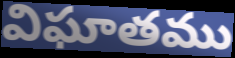
విఘాతము